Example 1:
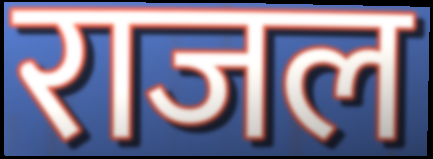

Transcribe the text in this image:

राजल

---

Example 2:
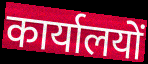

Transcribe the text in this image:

कार्यालयों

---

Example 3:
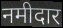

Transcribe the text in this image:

नमीदार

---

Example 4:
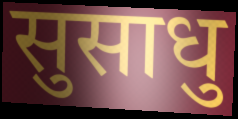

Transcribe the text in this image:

सुसाधु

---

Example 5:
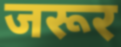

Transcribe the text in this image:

जरूर